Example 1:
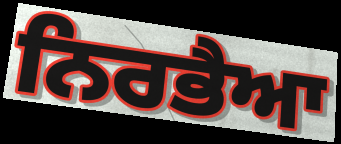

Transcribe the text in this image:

ਨਿਰਭੈਆ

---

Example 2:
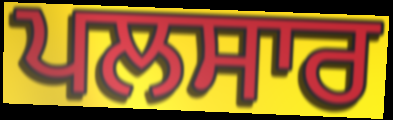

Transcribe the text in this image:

ਪਲਸਾਰ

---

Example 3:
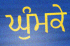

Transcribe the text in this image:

ਘੁੰਮਕੇ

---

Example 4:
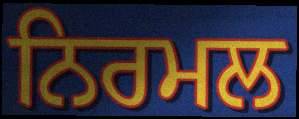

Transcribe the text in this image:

ਨਿਰਮਲ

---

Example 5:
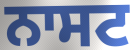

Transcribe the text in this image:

ਨਾਸਟ